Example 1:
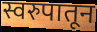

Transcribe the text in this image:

स्वरुपातून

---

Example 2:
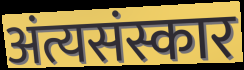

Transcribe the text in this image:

अंत्यसंस्कार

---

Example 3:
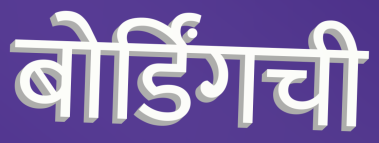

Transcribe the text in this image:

बोर्डिंगची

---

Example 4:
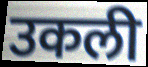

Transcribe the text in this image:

उकली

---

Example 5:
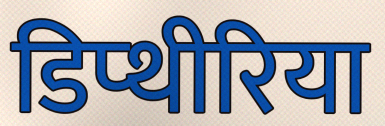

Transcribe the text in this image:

डिप्थीरिया